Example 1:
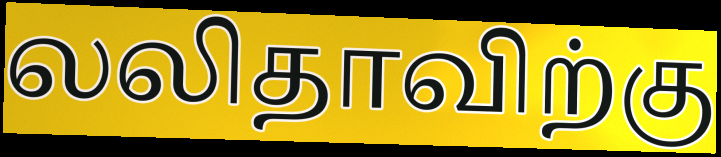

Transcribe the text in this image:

லலிதாவிற்கு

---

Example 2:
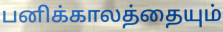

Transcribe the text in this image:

பனிக்காலத்தையும்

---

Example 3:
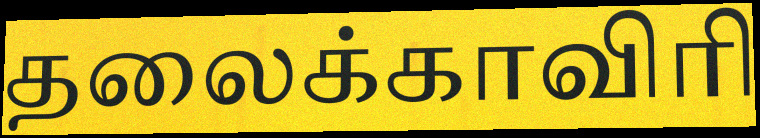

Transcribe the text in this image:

தலைக்காவிரி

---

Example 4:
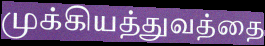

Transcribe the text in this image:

முக்கியத்துவத்தை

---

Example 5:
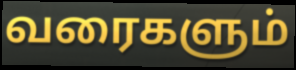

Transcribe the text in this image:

வரைகளும்